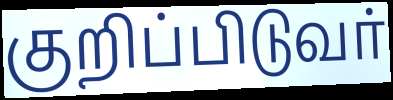
குறிப்பிடுவர்